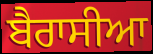
ਬੈਰਾਸੀਆ